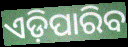
ଏଡ଼ିପାରିବ